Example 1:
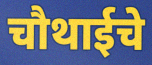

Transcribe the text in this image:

चौथाईचे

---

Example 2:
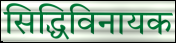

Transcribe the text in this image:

सिद्धिविनायक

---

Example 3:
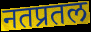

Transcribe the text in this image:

नतप्रतल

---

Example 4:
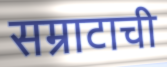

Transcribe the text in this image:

सम्राटाची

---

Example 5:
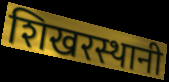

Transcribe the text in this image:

शिखरस्थानी